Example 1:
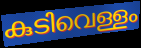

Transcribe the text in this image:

കുടിവെള്ളം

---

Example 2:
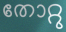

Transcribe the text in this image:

തോറ്റു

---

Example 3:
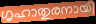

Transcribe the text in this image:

ഗൃഹാതുരനായി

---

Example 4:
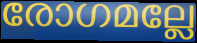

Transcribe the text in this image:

രോഗമല്ലേ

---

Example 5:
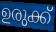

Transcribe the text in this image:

ഉരുക്ക്